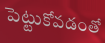
పెట్టుకోవడంతో